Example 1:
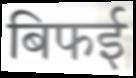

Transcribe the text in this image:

बिफई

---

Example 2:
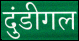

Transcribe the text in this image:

दुंडीगल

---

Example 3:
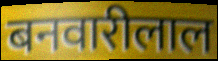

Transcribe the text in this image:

बनवारीलाल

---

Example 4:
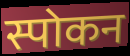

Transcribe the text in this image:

स्पोकन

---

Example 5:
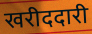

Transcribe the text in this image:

खरीददारी